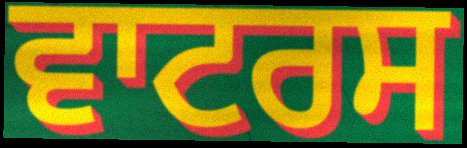
ਵਾਟਰਸ